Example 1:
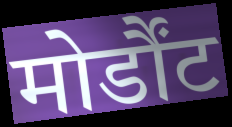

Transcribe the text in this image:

मोर्डौंट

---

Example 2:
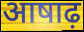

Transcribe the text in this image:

आषाढ़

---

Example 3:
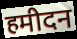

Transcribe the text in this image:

हमीदन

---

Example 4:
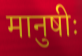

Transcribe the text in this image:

मानुषीः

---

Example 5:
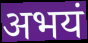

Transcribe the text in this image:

अभयं